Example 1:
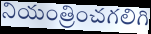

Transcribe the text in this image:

నియంత్రించగలిగి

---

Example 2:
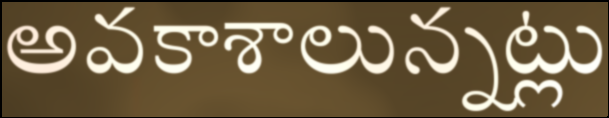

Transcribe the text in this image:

అవకాశాలున్నట్లు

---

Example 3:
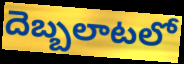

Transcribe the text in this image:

దెబ్బలాటలో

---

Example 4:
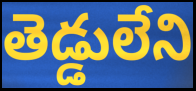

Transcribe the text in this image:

తెడ్డులేని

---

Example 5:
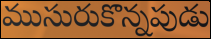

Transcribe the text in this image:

ముసురుకొన్నపుడు